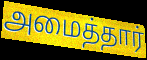
அமைத்தார்